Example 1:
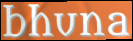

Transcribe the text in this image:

bhuna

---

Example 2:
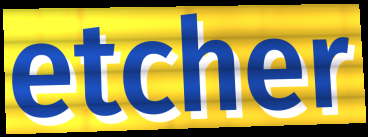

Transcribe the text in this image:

etcher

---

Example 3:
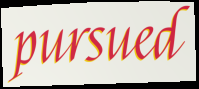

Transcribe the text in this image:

pursued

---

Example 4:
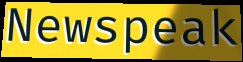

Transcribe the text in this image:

Newspeak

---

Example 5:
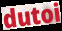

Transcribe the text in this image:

dutoi